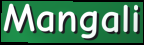
Mangali